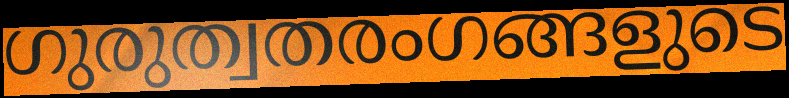
ഗുരുത്വതരംഗങ്ങളുടെ